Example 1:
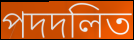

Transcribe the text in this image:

পদদলিত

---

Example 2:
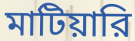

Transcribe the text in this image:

মাটিয়ারি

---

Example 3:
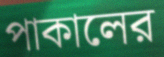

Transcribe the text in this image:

পাকালের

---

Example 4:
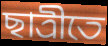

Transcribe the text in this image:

ছাত্রীতে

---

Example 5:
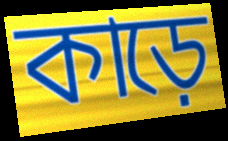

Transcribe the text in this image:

কাড়ে